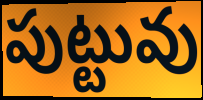
పుట్టువు